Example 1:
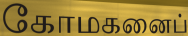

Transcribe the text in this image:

கோமகனைப்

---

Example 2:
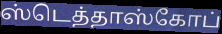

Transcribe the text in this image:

ஸ்டெத்தாஸ்கோப்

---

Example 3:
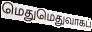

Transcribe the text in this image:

மெதுமெதுவாகப்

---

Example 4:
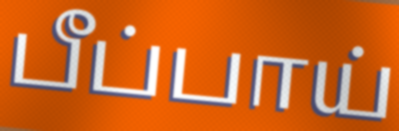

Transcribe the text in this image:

பீப்பாய்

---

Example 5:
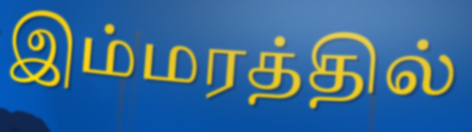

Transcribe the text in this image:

இம்மரத்தில்